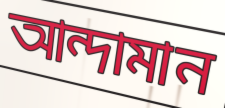
আন্দামান